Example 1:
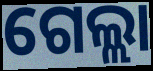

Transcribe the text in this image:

ଗେଲ୍ଲା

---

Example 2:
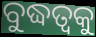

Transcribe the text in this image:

ବୁଦ୍ଧତ୍ଵକୁ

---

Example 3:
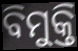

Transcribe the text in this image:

ବିମୁକ୍ତି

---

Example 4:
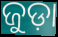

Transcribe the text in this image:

ଜୁଡ଼ା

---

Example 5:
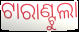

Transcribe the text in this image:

ଟାରାଣ୍ଟୁଲା